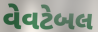
વેવટેબલ